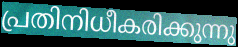
പ്രതിനിധീകരിക്കുന്നു